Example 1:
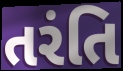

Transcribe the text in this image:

તરંતિ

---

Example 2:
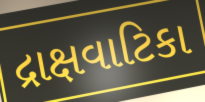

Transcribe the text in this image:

દ્રાક્ષવાટિકા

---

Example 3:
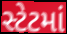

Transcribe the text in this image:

સ્ટેટમાં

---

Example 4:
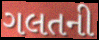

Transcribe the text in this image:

ગલતની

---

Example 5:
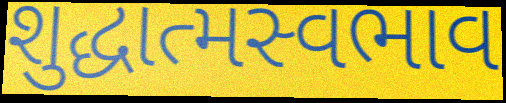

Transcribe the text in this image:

શુદ્ધાત્મસ્વભાવ